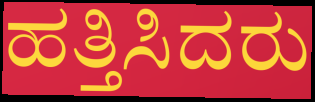
ಹತ್ತಿಸಿದರು